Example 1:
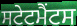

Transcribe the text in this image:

ਸਟੇਟਮੈਂਟਸ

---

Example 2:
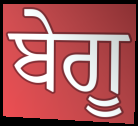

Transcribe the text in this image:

ਬੇਗੂ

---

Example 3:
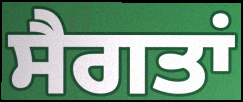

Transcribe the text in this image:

ਸੈਗਤਾਂ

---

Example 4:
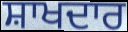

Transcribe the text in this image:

ਸ਼ਾਖਦਾਰ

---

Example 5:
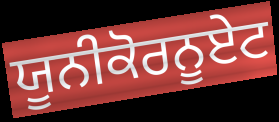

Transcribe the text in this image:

ਯੂਨੀਕੋਰਨੂਏਟ